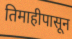
तिमाहीपासून